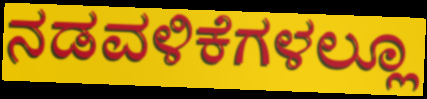
ನಡವಳಿಕೆಗಳಲ್ಲೂ